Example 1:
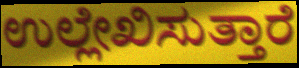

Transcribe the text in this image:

ಉಲ್ಲೇಖಿಸುತ್ತಾರೆ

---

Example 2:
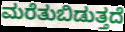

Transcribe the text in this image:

ಮರೆತುಬಿಡುತ್ತದೆ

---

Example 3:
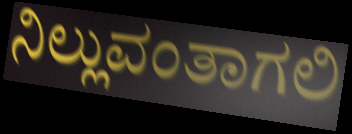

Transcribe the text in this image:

ನಿಲ್ಲುವಂತಾಗಲಿ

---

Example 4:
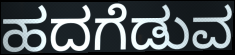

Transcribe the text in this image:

ಹದಗೆಡುವ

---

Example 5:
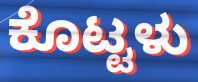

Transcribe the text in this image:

ಕೊಟ್ಟಳು